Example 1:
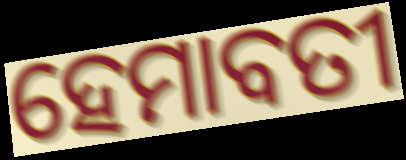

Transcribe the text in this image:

ହେମାବତୀ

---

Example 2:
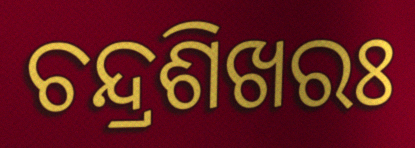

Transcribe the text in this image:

ଚନ୍ଦ୍ରଶିଖରଃ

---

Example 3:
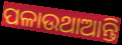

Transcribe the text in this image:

ପଳାଉଥାଆନ୍ତି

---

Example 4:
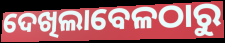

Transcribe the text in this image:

ଦେଖିଲାବେଳଠାରୁ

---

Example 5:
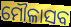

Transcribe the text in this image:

ମୌଳାସବ